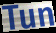
Tun